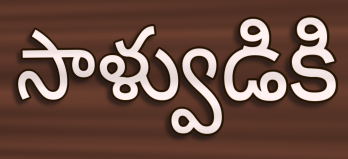
సాళ్వుడికి